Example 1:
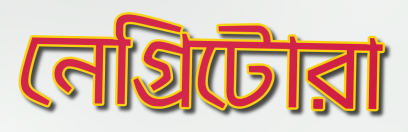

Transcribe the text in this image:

নেগ্রিটোরা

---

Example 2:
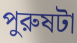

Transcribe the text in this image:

পুরুষটা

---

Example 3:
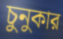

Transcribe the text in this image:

চুনুকার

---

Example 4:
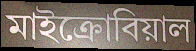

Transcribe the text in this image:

মাইক্রোবিয়াল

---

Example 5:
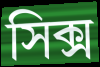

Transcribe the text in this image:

সিক্স